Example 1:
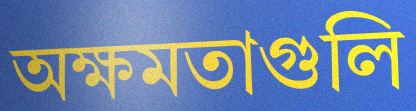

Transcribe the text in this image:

অক্ষমতাগুলি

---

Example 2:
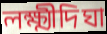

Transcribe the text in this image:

লক্ষ্মীদিঘা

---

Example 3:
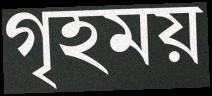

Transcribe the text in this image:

গৃহময়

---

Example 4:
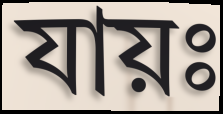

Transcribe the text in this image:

যায়ঃ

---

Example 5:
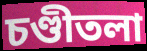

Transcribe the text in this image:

চণ্ডীতলা